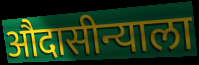
औदासीन्याला